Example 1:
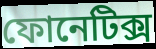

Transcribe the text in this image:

ফোনেটিক্স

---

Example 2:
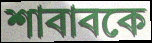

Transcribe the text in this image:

শাবাবকে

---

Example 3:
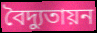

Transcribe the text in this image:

বৈদ্যুতায়ন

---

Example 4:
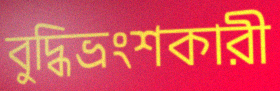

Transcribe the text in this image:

বুদ্ধিভ্রংশকারী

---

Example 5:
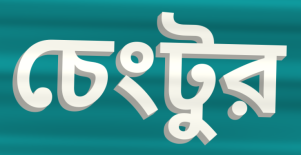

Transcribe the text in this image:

চেংটুর